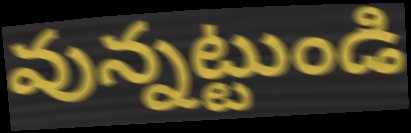
వున్నట్టుండి